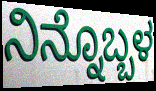
ನಿನ್ನೊಬ್ಬಳ